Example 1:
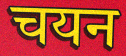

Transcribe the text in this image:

चयन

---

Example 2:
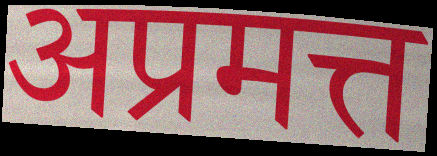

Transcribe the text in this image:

अप्रमत्त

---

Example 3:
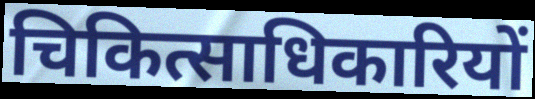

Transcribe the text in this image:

चिकित्साधिकारियों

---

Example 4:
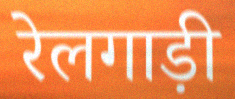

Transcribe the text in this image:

रेलगाड़ी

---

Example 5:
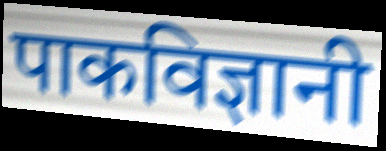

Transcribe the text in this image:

पाकविज्ञानी